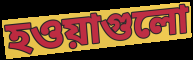
হওয়াগুলো